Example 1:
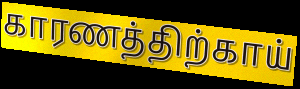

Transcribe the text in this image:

காரணத்திற்காய்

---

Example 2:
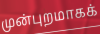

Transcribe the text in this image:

முன்புறமாகக்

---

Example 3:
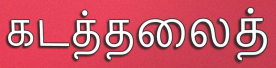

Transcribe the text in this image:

கடத்தலைத்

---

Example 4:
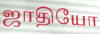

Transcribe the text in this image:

ஜாதியோ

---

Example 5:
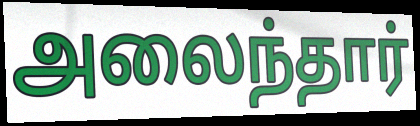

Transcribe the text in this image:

அலைந்தார்